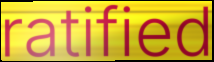
ratified